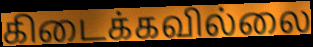
கிடைக்கவில்லை